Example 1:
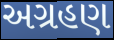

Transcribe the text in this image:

અગ્રહણ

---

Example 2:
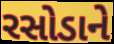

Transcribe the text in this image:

રસોડાને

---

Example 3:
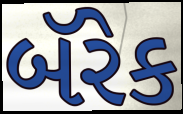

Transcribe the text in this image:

બૅરેક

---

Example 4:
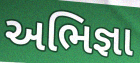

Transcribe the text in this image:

અભિજ્ઞા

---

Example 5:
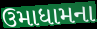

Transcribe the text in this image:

ઉમાધામના